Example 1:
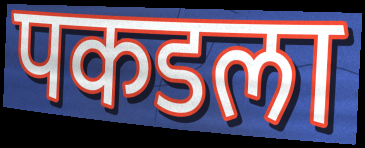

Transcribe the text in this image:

पकडला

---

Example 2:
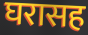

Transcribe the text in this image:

घरासह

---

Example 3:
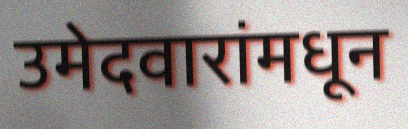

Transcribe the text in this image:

उमेदवारांमधून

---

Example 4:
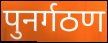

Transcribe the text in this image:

पुनर्गठण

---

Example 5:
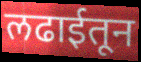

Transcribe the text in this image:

लढाईतून